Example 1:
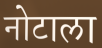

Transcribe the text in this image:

नोटाला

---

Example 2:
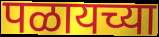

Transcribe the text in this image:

पळायच्या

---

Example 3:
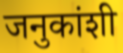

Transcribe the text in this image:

जनुकांशी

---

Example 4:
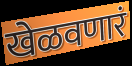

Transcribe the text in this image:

खेळवणारं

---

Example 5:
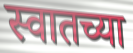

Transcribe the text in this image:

स्वातच्या